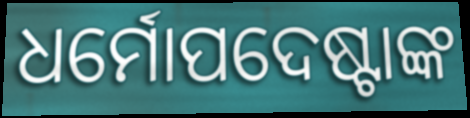
ଧର୍ମୋପଦେଷ୍ଟାଙ୍କ